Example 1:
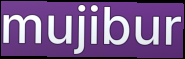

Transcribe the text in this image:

mujibur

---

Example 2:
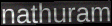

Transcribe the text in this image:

nathuram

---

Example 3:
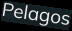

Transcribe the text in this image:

Pelagos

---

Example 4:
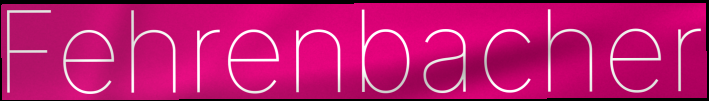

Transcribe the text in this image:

Fehrenbacher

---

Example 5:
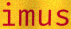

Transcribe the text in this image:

imus